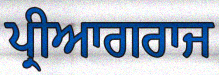
ਪ੍ਰੀਆਗਰਾਜ